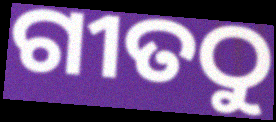
ଗୀତଠୁ